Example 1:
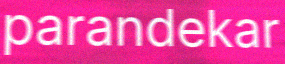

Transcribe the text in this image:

parandekar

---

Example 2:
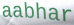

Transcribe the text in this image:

aabhar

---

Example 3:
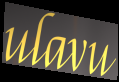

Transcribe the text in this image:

ulavu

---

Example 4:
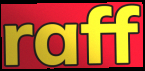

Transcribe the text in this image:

raff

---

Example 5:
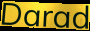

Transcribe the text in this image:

Darad